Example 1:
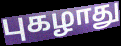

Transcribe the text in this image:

புகழாது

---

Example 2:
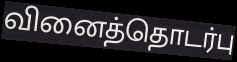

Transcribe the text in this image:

வினைத்தொடர்பு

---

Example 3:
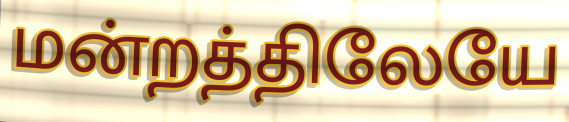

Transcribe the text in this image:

மன்றத்திலேயே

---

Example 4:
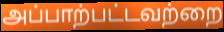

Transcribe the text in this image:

அப்பாற்பட்டவற்றை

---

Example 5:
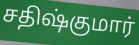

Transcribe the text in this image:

சதிஷ்குமார்